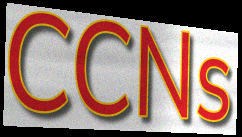
CCNs